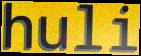
huli